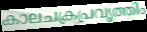
കാലചക്രപ്രവൃത്തിം